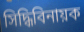
সিদ্ধিবিনায়ক